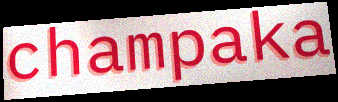
champaka